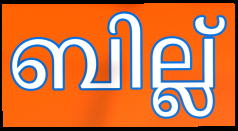
ബില്ല്